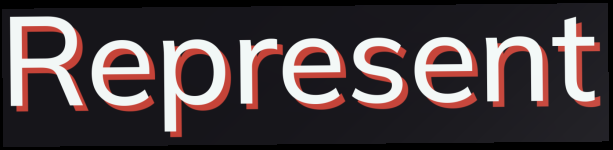
Represent